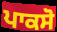
ਪਾਕਸੋ